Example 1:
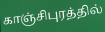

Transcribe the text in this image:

காஞ்சிபுரத்தில்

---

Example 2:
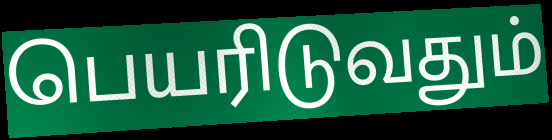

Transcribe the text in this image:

பெயரிடுவதும்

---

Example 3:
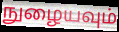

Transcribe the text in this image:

நுழையவும்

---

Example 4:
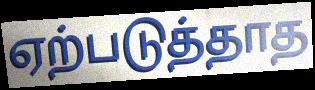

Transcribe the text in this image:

ஏற்படுத்தாத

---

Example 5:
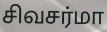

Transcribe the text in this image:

சிவசர்மா